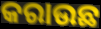
କରାଉଛ